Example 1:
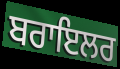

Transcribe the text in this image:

ਬਰਾਇਲਰ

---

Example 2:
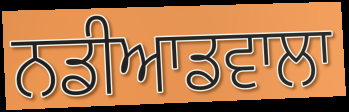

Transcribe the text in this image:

ਨਡੀਆਡਵਾਲਾ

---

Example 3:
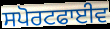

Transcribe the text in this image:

ਸਪੋਰਟਫਾਈਵ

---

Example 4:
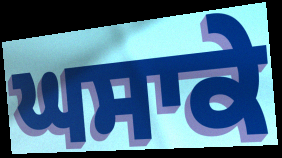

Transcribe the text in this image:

ਘਸਾਕੇ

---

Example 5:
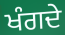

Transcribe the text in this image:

ਖੰਗਦੇ